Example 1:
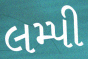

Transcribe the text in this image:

લમ્પી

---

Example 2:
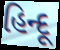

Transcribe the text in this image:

હિન્દૂ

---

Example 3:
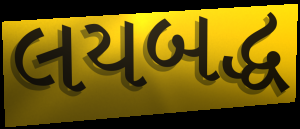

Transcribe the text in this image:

લયબદ્ધ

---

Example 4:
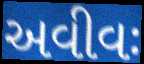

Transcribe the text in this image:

અવીવઃ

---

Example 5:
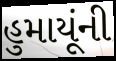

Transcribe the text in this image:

હુમાયૂંની